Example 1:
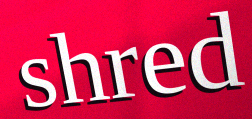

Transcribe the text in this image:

shred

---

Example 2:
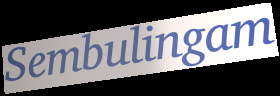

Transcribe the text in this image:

Sembulingam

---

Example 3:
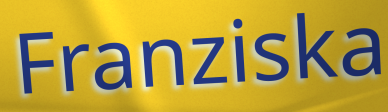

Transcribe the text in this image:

Franziska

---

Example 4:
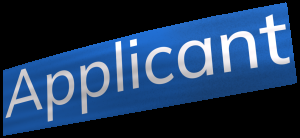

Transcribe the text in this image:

Applicant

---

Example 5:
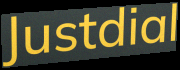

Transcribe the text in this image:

Justdial